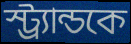
স্ট্র্যান্ডকে